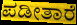
ಪಡೀತಾರೆ